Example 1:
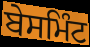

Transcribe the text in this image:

ਬੇਸਮਿੰਟ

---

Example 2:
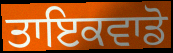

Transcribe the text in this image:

ਤਾਇਕਵਾਡੋ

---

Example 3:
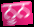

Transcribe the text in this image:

ਨੂਨ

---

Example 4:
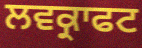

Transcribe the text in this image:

ਲਵਕ੍ਰਾਫਟ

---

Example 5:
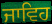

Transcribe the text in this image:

ਜਾਵਿਹ